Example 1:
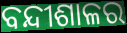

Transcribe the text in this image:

ବନ୍ଦୀଶାଳର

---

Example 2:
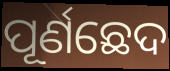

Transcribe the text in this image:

ପୂର୍ଣଛେଦ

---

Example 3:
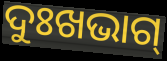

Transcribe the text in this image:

ଦୁଃଖଭାଗ୍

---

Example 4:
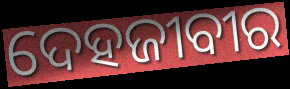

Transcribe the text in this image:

ଦେହଜୀବୀର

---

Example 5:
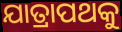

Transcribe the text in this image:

ଯାତ୍ରାପଥକୁ